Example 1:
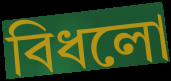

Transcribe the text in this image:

বিধলো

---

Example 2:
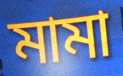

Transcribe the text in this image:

মামা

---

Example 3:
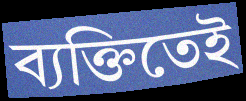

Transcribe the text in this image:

ব্যক্তিতেই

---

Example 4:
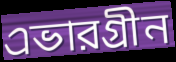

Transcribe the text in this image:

এভারগ্রীন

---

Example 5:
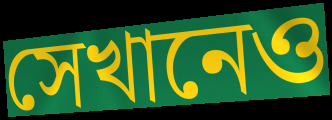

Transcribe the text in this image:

সেখানেও